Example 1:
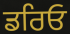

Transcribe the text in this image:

ਡਰਿਓ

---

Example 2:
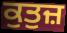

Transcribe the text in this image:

ਕੁਤੁਜ਼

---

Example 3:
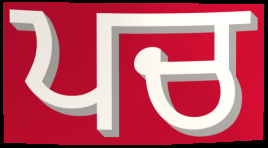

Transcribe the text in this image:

ਪਚ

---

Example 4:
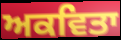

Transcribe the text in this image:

ਅਕਵਿਤਾ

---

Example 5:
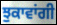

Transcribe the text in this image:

ਝੁਕਾਵਾਂਗੀ